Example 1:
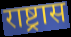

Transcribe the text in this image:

राष्ट्रास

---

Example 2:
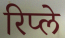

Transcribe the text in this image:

रिप्ले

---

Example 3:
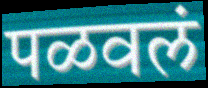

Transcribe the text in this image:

पळवलं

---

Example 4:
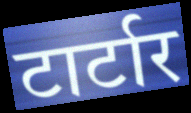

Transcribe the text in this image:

टार्टार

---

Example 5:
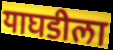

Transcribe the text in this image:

याघडीला